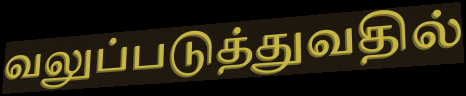
வலுப்படுத்துவதில்